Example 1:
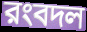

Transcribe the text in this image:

রংবদল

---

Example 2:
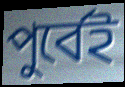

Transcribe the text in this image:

পুর্বেই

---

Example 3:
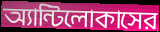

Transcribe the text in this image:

অ্যান্টিলোকাসের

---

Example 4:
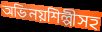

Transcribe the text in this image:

অভিনয়শিল্পীসহ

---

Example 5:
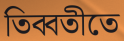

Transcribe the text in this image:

তিব্বতীতে